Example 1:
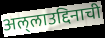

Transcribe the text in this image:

अल्लाउद्दिनाची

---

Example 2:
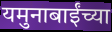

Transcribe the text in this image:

यमुनाबाईंच्या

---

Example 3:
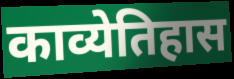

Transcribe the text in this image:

काव्येतिहास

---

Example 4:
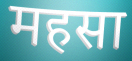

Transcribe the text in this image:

महसा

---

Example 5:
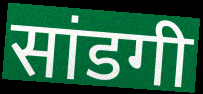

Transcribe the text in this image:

सांडगी